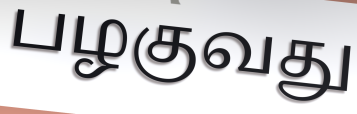
பழகுவது